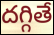
దగ్గితే